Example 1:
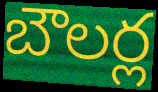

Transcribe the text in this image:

బౌలర్ల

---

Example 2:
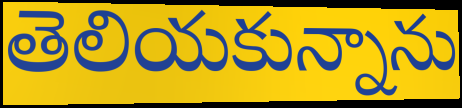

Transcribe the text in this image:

తెలియకున్నాను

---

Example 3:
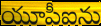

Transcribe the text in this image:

యూపీఐను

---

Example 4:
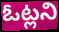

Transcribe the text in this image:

ఓట్లని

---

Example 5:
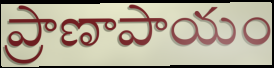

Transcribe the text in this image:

ప్రాణాపాయం